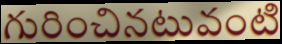
గురించినటువంటి